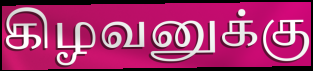
கிழவனுக்கு